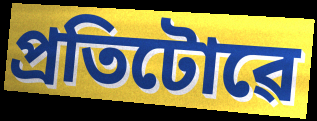
প্ৰতিটোৱে